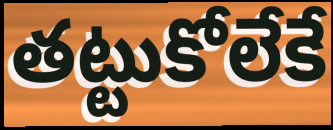
తట్టుకోలేకే